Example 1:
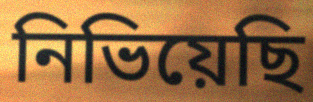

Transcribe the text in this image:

নিভিয়েছি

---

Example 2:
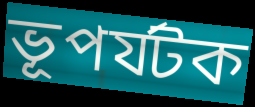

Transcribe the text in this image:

ভূপর্যটক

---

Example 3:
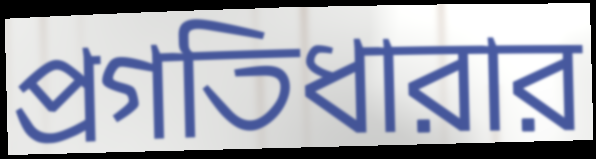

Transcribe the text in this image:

প্রগতিধারার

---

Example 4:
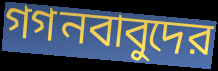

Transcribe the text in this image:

গগনবাবুদের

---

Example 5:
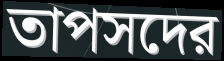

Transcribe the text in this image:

তাপসদের